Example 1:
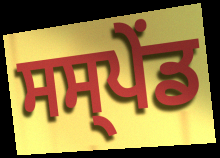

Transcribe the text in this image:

ਸਸ੍ਪੇੰਡ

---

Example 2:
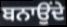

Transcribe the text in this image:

ਬਨਾਉਂਦੇ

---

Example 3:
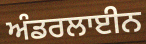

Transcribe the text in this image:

ਅੰਡਰਲਾਈਨ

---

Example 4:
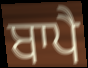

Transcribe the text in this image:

ਬਾਪੈ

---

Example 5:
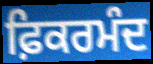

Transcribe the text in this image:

ਫ਼ਿਕਰਮੰਦ